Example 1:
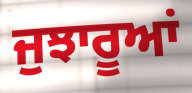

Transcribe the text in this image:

ਜੁਝਾਰੂਆਂ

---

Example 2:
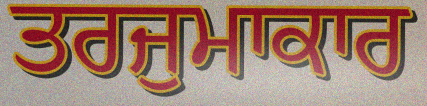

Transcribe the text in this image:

ਤਰਜੁਮਾਕਾਰ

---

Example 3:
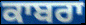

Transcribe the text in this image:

ਕਾਬਰਾ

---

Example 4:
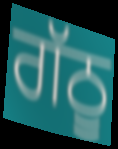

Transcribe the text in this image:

ਗੱਠੂ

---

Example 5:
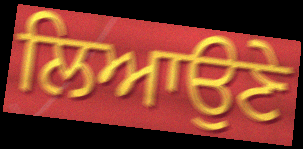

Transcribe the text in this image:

ਲਿਆਉਣੇ